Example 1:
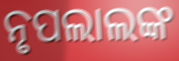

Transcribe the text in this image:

ନୃପଲାଲଙ୍କ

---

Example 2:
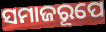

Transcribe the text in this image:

ସମାଜରୂପେ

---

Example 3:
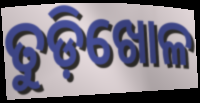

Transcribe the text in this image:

ତୁଡ଼ିଖୋଳ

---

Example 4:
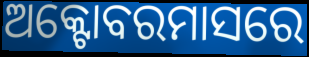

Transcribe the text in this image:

ଅକ୍ଟୋବରମାସରେ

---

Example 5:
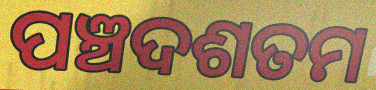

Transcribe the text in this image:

ପଞ୍ଚଦଶତମ